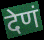
देणं